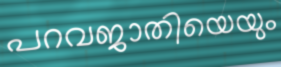
പറവജാതിയെയും